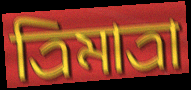
ত্রিমাত্রা